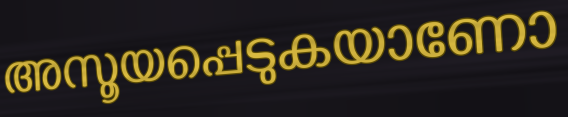
അസൂയപ്പെടുകയാണോ